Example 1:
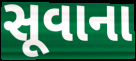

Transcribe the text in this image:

સૂવાના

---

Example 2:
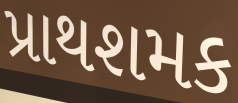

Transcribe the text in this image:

પ્રાથશમક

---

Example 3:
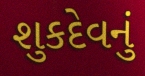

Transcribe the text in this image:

શુકદેવનું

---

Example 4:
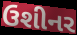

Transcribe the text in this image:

ઉશીનર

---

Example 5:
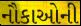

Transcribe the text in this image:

નૌકાઓની